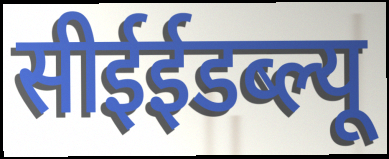
सीईईडब्ल्यू